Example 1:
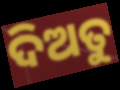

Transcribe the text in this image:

ଦିଅତୁ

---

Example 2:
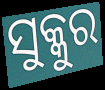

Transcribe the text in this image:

ସୁକ୍କୁର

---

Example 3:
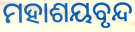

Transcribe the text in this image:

ମହାଶୟବୃନ୍ଦ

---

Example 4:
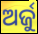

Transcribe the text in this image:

ଅର୍ଜୁ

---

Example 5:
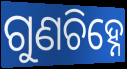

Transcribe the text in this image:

ଗୁଣଚିହ୍ନେ